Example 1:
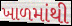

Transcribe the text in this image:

ખાળમાંથી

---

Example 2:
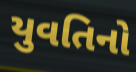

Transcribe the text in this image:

યુવતિનો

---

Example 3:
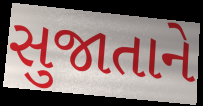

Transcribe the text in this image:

સુજાતાને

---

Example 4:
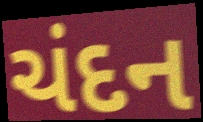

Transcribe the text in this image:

ચંદન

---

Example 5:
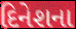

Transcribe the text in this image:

દિનેશના